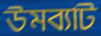
উমব্যাট